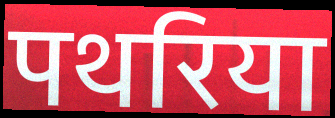
पथरिया